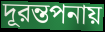
দূরন্তপনায়